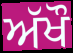
ਅੱਖੌ